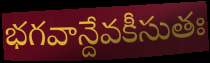
భగవాన్దేవకీసుతః